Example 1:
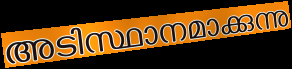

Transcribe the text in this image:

അടിസ്ഥാനമാക്കുന്നു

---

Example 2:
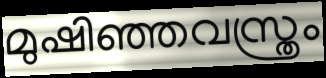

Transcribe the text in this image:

മുഷിഞ്ഞവസ്ത്രം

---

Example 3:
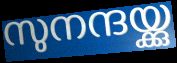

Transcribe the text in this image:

സുനന്ദയ്ക്കു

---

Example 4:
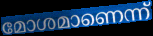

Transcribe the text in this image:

മോശമാണെന്ന്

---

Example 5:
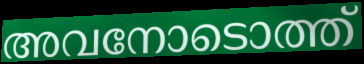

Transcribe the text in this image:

അവനോടൊത്ത്